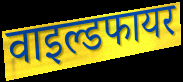
वाइल्डफायर